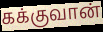
கக்குவான்